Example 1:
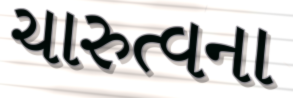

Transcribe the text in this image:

ચારુત્વના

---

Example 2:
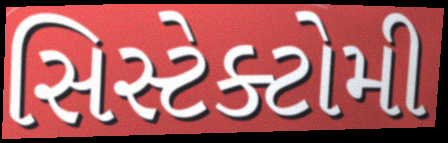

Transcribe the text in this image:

સિસ્ટેક્ટોમી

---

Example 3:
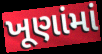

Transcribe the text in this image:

ખૂણાંમાં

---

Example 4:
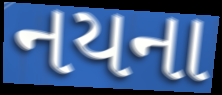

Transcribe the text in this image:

નયના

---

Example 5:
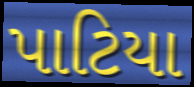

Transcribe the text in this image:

પાટિયા